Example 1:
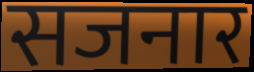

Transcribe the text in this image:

सजनार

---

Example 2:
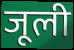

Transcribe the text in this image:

जूली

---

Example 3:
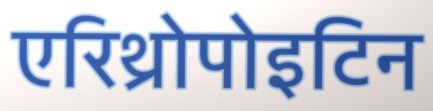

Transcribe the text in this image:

एरिथ्रोपोइटिन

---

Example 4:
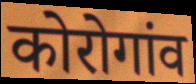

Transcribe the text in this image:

कोरोगांव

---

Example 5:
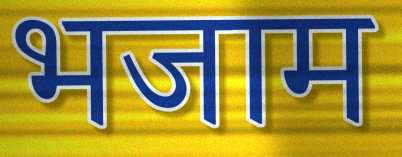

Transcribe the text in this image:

भजाम